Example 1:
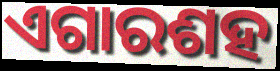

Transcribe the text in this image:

ଏଗାରଶହ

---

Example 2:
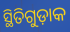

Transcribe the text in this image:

ସ୍ଥିତିଗୁଡ଼ାକ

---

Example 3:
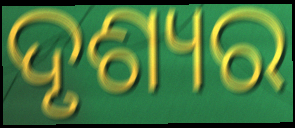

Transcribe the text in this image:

ଦୃଶ୍ୟର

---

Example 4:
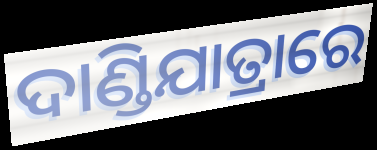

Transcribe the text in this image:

ଦାଣ୍ଡିଯାତ୍ରାରେ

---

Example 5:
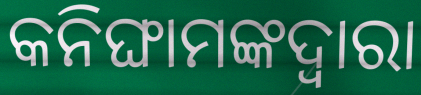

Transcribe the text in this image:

କନିଙ୍ଘାମଙ୍କଦ୍ଵାରା